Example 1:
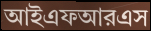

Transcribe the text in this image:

আইএফআরএস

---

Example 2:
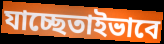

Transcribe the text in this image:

যাচ্ছেতাইভাবে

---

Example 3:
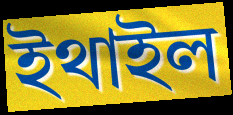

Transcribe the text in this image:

ইথাইল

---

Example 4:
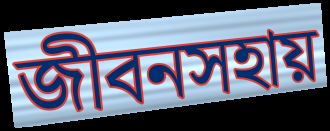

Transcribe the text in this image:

জীবনসহায়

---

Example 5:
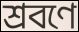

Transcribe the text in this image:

শ্রবণে